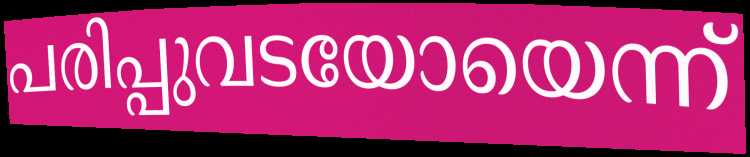
പരിപ്പുവടയോയെന്ന്